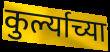
कुर्ल्याच्या